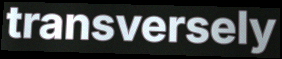
transversely